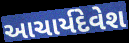
આચાર્યદેવેશ